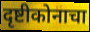
दृष्टीकोनाचा